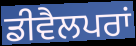
ਡੀਵੈਲਪਰਾਂ